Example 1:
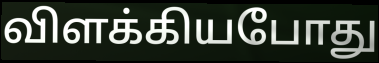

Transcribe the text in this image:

விளக்கியபோது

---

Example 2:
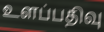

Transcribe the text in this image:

உளப்பதிவு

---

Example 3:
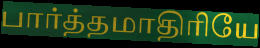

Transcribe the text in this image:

பார்த்தமாதிரியே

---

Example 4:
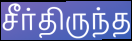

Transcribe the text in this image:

சீர்திருந்த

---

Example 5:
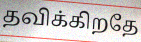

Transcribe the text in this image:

தவிக்கிறதே